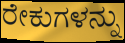
ರೇಕುಗಳನ್ನು